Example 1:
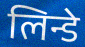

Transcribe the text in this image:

लिन्डे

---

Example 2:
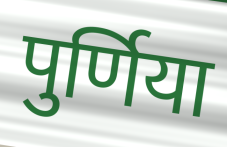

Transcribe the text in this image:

पुर्णिया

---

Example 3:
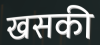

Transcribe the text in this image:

खसकी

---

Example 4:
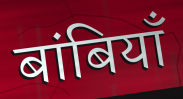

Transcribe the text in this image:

बांबियाँ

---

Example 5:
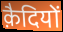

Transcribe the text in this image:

क़ैदियों